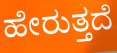
ಹೇರುತ್ತದೆ